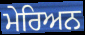
ਮੇਰਿਅਨ